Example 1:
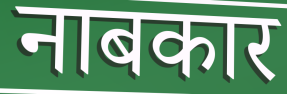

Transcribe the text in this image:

नाबकार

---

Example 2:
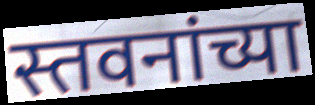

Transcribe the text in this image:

स्तवनांच्या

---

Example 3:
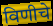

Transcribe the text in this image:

विणीचे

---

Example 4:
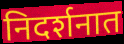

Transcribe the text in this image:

निदर्शनात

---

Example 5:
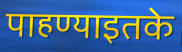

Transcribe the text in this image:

पाहण्याइतके